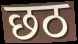
छठ